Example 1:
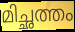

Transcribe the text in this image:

മിച്ഛത്തം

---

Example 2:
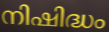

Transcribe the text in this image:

നിഷിദ്ധം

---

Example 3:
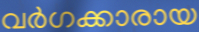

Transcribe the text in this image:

വർഗക്കാരായ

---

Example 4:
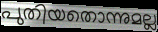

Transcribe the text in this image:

പുതിയതൊന്നുമല്ല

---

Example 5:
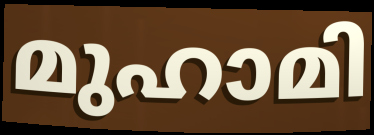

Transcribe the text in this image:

മുഹാമി